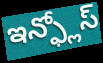
ఇన్ఫ్లోస్